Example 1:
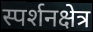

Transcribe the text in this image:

स्पर्शनक्षेत्र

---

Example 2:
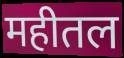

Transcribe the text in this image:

महीतल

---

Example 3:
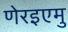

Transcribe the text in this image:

णेरइएमु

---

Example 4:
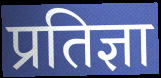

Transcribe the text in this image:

प्रतिज्ञा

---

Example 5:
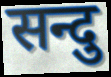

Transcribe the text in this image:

सन्दु